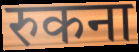
रुकना